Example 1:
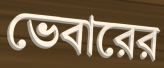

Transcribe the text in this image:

ভেবারের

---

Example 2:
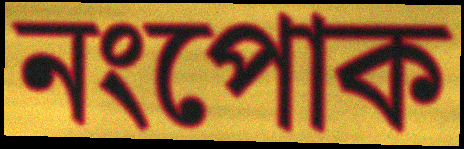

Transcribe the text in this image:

নংপোক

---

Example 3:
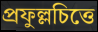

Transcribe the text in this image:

প্রফুল্লচিত্তে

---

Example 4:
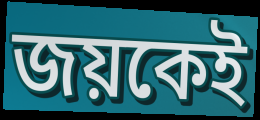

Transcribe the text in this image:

জয়কেই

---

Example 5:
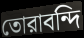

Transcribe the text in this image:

তোরাবন্দি